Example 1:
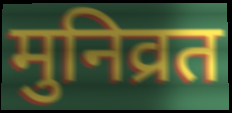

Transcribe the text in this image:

मुनिव्रत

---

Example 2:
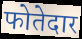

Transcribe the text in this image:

फोतेदार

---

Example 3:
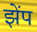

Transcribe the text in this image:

झेंप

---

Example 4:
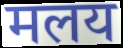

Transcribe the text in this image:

मलय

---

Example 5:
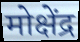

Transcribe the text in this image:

मोक्षेंद्र